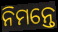
ନିମନ୍ତେ